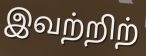
இவற்றிற்